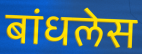
बांधलेस